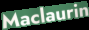
Maclaurin